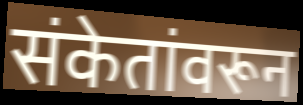
संकेतांवरून